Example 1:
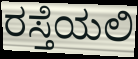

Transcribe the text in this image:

ರಸ್ತೆಯಲಿ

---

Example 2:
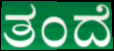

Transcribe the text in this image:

ತಂದೆ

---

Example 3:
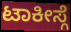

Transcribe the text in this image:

ಟಾಕೀಸ್ಗೆ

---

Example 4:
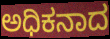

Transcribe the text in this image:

ಅಧಿಕನಾದ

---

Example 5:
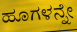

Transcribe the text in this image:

ಹೂಗಳನ್ನೇ